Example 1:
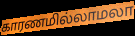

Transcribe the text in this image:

காரணமில்லாமலா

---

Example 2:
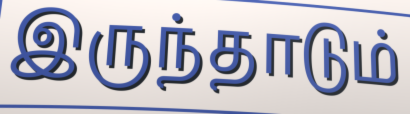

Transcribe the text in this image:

இருந்தாடும்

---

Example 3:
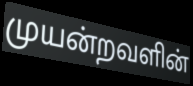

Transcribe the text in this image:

முயன்றவளின்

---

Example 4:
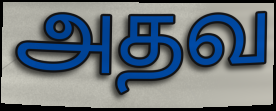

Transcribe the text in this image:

அதவ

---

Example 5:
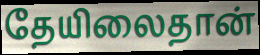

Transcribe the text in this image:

தேயிலைதான்